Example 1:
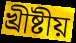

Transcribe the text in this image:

খ্ৰীষ্টীয়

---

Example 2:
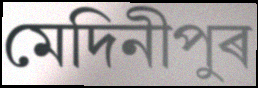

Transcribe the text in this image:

মেদিনীপুৰ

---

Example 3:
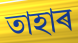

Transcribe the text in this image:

তাহাৰ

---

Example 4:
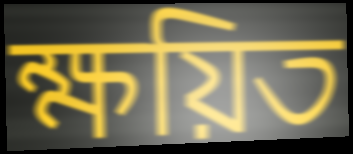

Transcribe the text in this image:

ক্ষয়িত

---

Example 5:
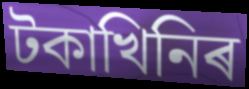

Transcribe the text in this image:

টকাখিনিৰ